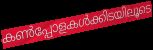
കൺപ്പോളകൾക്കിടയിലൂടെ